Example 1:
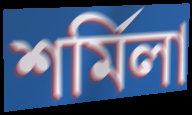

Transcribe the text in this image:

শর্মিলা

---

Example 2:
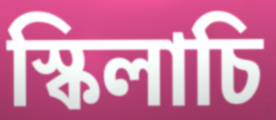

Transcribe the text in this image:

স্কিলাচি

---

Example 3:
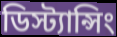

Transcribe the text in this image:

ডিস্ট্যান্সিং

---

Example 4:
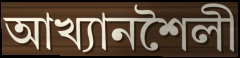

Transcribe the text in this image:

আখ্যানশৈলী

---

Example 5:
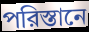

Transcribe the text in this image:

পরিস্তানে